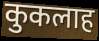
कुकलाह